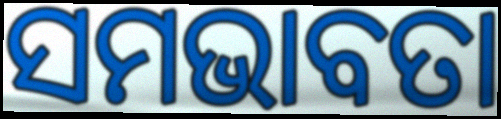
ସମଭାବତା